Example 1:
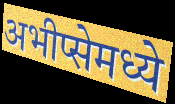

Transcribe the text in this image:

अभीप्सेमध्ये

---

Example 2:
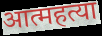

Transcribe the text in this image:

आत्महत्या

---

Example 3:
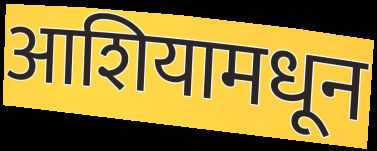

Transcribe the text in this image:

आशियामधून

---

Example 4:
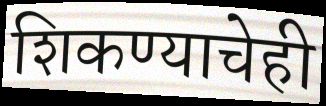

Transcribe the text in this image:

शिकण्याचेही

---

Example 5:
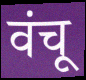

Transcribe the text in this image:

वंचू